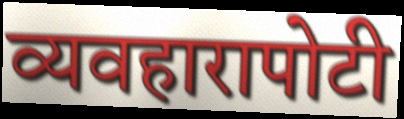
व्यवहारापोटी